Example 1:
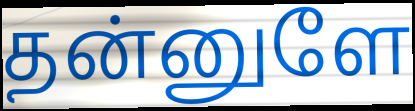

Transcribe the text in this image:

தன்னுளே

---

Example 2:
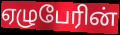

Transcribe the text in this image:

ஏழுபேரின்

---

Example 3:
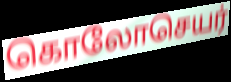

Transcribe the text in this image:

கொலோசெயர்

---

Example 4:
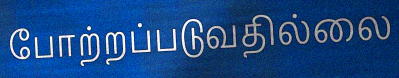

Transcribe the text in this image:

போற்றப்படுவதில்லை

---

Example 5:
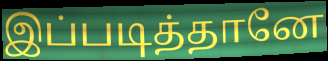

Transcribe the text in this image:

இப்படித்தானே